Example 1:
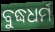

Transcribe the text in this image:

ବୁଦ୍ଧଧର୍ମ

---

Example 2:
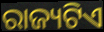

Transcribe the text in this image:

ରାଜ୍ୟଟିଏ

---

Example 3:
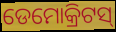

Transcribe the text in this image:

ଡେମୋକ୍ରିଟସ୍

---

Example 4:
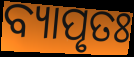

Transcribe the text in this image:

ବ୍ୟାପୃତଃ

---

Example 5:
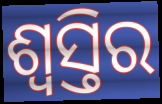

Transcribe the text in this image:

ଶ୍ୱସ୍ତିର